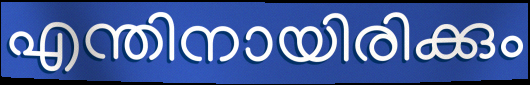
എന്തിനായിരിക്കും